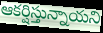
ఆకర్షిస్తున్నాయని